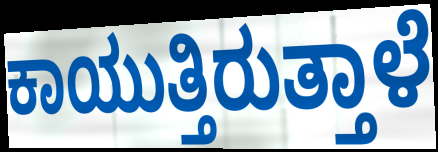
ಕಾಯುತ್ತಿರುತ್ತಾಳೆ